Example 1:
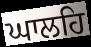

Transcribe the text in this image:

ਘਾਲਹਿ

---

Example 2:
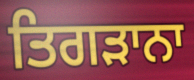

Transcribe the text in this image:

ਤਿਗੜਾਨਾ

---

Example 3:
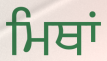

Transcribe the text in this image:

ਮਿਥਾਂ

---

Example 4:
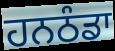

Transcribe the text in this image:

ਹਨਠੰਡਾ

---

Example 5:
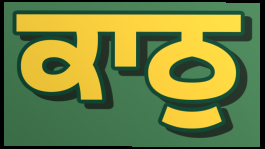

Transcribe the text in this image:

ਕਾਠੁ